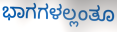
ಭಾಗಗಳಲ್ಲಂತೂ